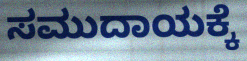
ಸಮುದಾಯಕ್ಕೆ